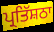
ਪ੍ਰਤਿੱਸ਼ਠਾ